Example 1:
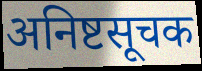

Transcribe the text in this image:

अनिष्टसूचक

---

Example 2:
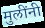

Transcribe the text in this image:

मुलींनी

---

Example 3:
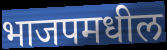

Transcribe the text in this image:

भाजपमधील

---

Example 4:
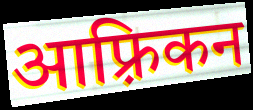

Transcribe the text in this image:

आफ़्रिकन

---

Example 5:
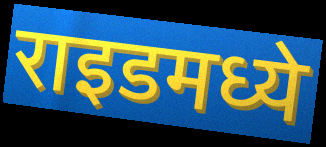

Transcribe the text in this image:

राइडमध्ये